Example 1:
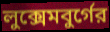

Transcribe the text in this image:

লুক্সেমবুর্গের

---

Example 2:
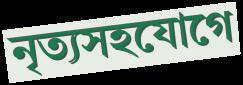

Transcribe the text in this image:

নৃত্যসহযোগে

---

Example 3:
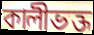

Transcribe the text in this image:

কালীভক্ত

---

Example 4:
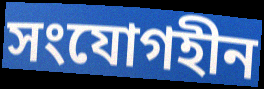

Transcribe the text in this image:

সংযোগহীন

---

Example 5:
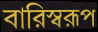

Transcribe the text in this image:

বারিস্বরূপ